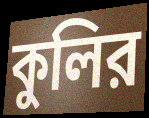
কুলির